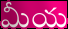
మీయ